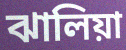
ঝালিয়া